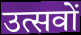
उत्सवों